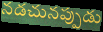
నడచునప్పుడు